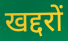
खद्दरों